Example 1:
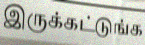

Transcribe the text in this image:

இருக்கட்டுங்க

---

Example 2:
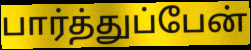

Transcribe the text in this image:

பார்த்துப்பேன்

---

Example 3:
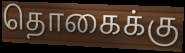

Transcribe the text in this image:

தொகைக்கு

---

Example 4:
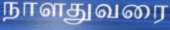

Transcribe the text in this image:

நாளதுவரை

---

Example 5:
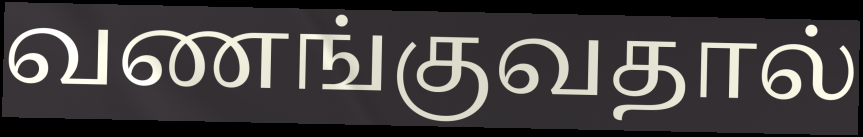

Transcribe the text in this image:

வணங்குவதால்